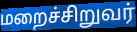
மறைச்சிறுவர்